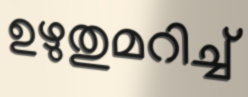
ഉഴുതുമറിച്ച്